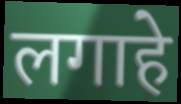
लगाहे